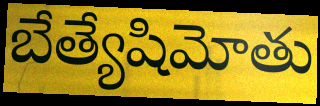
బేత్యేషిమోతు